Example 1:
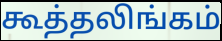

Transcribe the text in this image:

கூத்தலிங்கம்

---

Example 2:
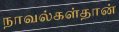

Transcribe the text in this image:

நாவல்கள்தான்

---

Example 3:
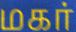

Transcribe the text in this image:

மகர்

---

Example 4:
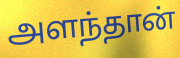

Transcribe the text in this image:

அளந்தான்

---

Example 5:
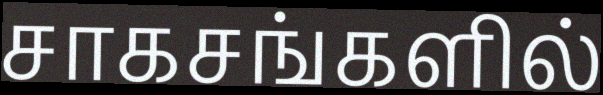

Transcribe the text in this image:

சாகசங்களில்